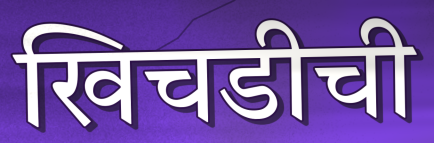
खिचडीची